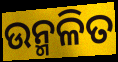
ଉନ୍ମଳିତ